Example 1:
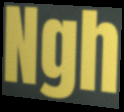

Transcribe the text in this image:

Ngh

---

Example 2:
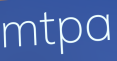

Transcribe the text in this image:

mtpa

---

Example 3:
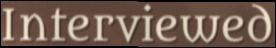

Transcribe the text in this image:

Interviewed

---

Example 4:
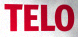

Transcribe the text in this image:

TELO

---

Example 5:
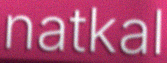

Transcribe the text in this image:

natkal